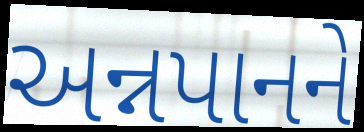
અન્નપાનને